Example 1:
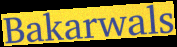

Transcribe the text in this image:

Bakarwals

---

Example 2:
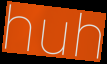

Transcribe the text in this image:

huh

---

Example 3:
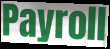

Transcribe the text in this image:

Payroll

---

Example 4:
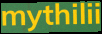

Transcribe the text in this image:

mythilii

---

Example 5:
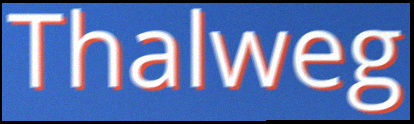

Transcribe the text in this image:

Thalweg